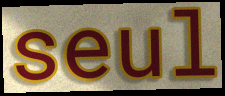
seul